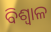
ବିଶ୍ୱାଳ